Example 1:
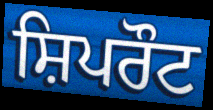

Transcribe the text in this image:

ਸ਼ਿਪਰੌਟ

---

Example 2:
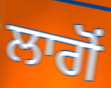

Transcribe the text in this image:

ਲਾਗੋਂ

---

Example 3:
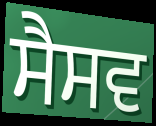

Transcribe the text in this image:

ਸੈਸਵ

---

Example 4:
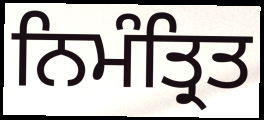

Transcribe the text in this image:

ਨਿਮੰਤ੍ਰਿਤ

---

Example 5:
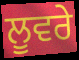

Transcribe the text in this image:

ਲੂਵਰੇ